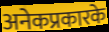
अनेकप्रकारके